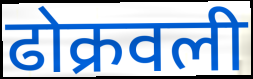
ढोक्रवली